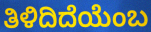
ತಿಳಿದಿದೆಯೆಂಬ